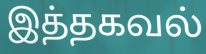
இத்தகவல்